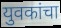
युवकांचा